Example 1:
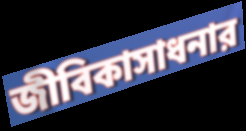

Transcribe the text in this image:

জীবিকাসাধনার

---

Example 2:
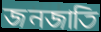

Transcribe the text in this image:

জনজাতি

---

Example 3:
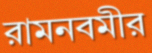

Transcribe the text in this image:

রামনবমীর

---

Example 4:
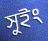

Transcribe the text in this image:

সুইং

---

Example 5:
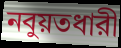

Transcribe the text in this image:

নবুয়তধারী